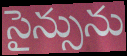
సైన్సును